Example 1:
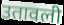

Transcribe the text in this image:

उतावली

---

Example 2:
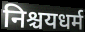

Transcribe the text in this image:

निश्चयधर्म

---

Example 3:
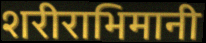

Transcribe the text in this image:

शरीराभिमानी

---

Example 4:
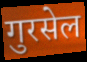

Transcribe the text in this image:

गुरसेल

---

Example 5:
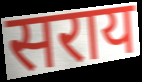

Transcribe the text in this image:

सराय